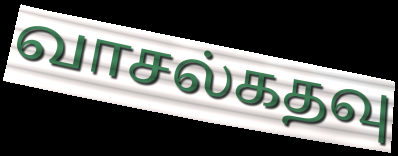
வாசல்கதவு